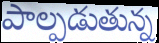
పాల్పడుతున్న